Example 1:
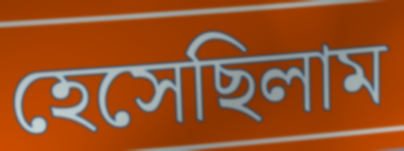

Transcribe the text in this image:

হেসেছিলাম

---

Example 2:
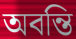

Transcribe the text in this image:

অবন্তি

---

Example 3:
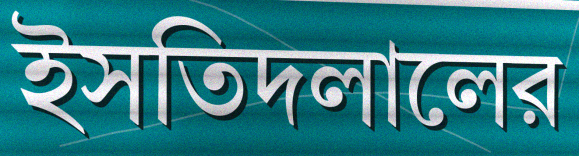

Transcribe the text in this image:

ইসতিদলালের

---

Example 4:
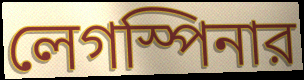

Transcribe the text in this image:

লেগস্পিনার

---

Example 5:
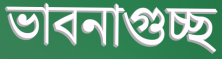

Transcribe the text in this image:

ভাবনাগুচ্ছ